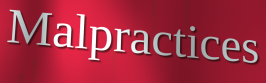
Malpractices